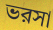
ভরসা